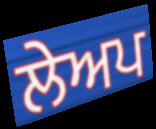
ਲੇਅਪ